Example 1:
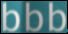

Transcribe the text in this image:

bbb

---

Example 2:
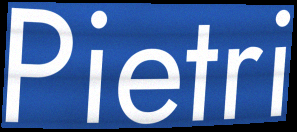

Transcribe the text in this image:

Pietri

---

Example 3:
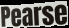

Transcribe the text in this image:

Pearse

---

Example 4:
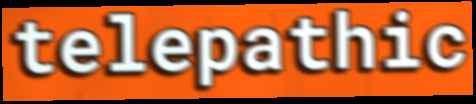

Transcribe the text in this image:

telepathic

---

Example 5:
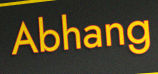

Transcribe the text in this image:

Abhang